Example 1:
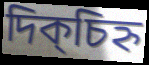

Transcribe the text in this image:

দিক্‌চিহ্ন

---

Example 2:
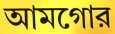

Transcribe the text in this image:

আমগোর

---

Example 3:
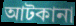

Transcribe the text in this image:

আটকানা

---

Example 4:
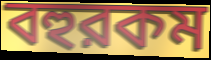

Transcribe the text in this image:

বহুরকম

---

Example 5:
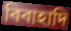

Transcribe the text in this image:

বিবাহাদি